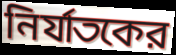
নির্যাতকের